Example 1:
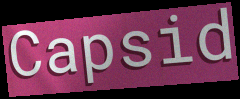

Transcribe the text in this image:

Capsid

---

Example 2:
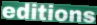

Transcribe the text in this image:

editions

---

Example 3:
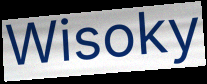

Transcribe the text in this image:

Wisoky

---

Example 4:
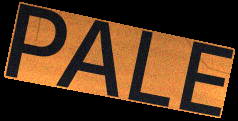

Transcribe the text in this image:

PALE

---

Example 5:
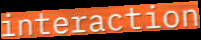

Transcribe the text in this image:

interaction